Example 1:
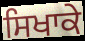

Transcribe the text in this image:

ਸਿਖਾਕੇ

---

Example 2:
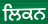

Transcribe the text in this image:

ਲਿਕਨ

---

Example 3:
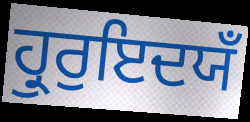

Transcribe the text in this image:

ਹ੍ਰੁਰੁਇਦਯਁ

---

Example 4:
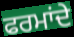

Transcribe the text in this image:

ਫਰਮਾਂਦੇ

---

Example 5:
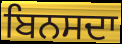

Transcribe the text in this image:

ਬਿਨਸਦਾ